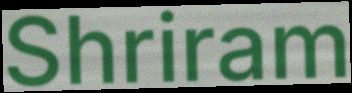
Shriram